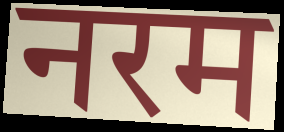
नरम